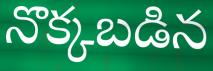
నొక్కబడిన